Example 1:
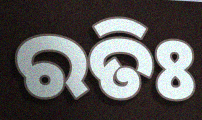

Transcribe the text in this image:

ରତିଃ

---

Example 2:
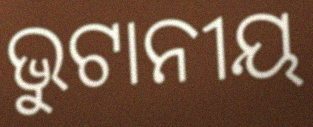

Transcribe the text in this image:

ଭୁଟାନୀୟ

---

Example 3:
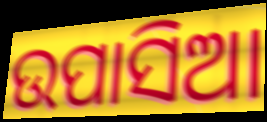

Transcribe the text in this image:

ଉପାସିଆ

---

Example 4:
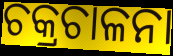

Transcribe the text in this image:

ଚକ୍ରଚାଳନା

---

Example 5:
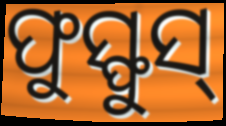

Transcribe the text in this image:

ଫୁସ୍ଫୁସ୍